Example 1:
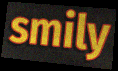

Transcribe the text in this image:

smily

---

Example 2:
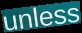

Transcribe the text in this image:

unless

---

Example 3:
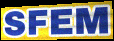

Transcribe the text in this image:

SFEM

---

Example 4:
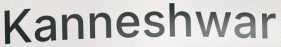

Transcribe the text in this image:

Kanneshwar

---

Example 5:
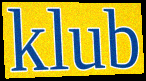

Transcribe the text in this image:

klub